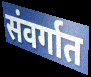
संवर्गात